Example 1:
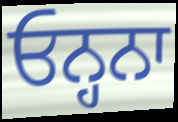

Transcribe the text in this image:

ਓਨ੍ਹਨਾ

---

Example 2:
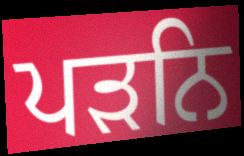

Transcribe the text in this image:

ਪੜਨਿ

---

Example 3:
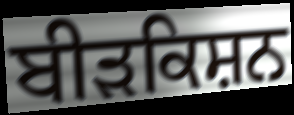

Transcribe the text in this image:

ਬੀੜਕਿਸ਼ਨ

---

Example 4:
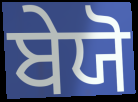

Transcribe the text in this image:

ਬੇਯੋ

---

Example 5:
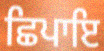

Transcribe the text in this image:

ਛਿਪਾਇ